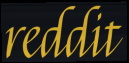
reddit